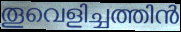
തൂവെളിച്ചത്തിൻ